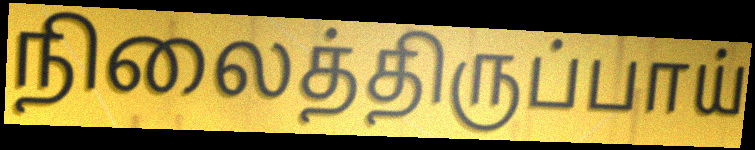
நிலைத்திருப்பாய்